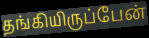
தங்கியிருப்பேன்